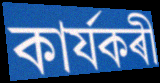
কাৰ্যকৰী